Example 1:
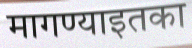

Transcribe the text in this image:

मागण्याइतका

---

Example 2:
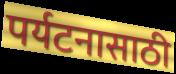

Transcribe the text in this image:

पर्यटनासाठी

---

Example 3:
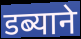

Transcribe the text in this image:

डब्याने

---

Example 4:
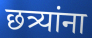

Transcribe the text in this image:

छत्र्यांना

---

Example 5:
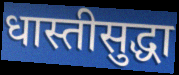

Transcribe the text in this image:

धास्तीसुद्धा